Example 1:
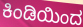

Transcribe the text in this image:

ಕಿಂಡಿಯಿಂದ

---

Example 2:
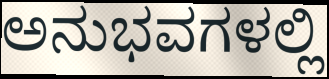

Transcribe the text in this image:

ಅನುಭವಗಳಲ್ಲಿ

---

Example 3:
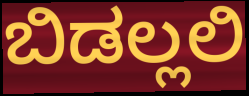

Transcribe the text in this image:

ಬಿಡಲ್ಲಲಿ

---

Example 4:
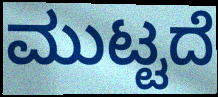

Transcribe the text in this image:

ಮುಟ್ಟದೆ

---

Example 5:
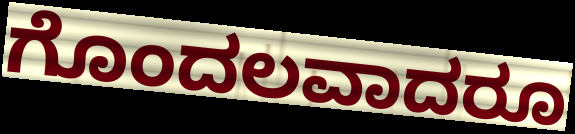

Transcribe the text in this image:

ಗೊಂದಲವಾದರೂ